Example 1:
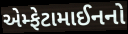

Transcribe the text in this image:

એમ્ફેટામાઈનનો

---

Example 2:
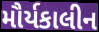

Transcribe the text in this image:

મૌર્યકાલીન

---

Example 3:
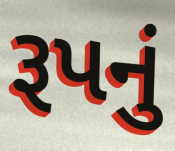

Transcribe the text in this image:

રૂપનું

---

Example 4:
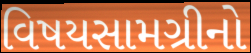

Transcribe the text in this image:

વિષયસામગ્રીનો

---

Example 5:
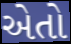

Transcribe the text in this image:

એતો